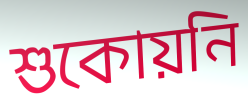
শুকোয়নি